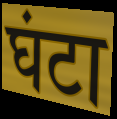
घंटा